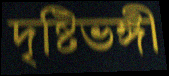
দৃষ্টিভঙ্গী